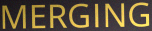
MERGING